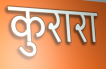
कुरारा